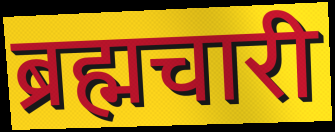
ब्रह्मचारी